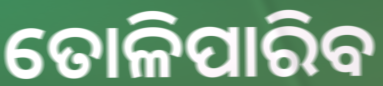
ତୋଳିପାରିବ